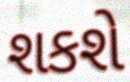
શકશે